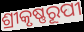
ଶ୍ରୀକୃଷ୍ଣରୂପୀ